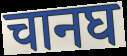
चानघ